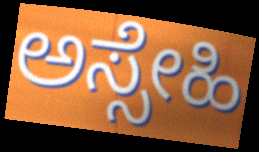
ಅಸ್ಸೇಹಿ